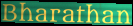
Bharathan